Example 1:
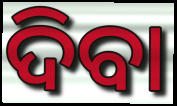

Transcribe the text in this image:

ଦିବା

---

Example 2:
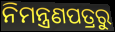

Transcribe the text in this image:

ନିମନ୍ତ୍ରଣପତ୍ରରୁ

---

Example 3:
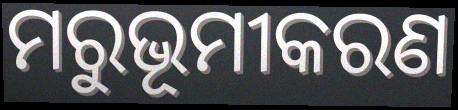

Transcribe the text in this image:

ମରୁଭୂମୀକରଣ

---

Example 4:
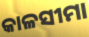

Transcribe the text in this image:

କାଳସୀମା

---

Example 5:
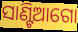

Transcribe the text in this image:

ସାଣ୍ଟିଆଗୋ